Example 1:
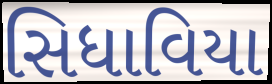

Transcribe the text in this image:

સિધાવિયા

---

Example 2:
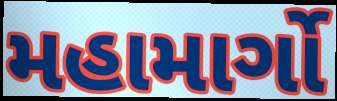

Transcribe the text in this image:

મહામાર્ગો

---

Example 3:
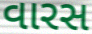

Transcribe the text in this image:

વારસ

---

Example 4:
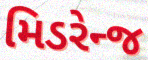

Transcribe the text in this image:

મિડરેન્જ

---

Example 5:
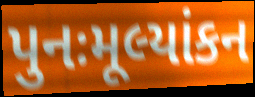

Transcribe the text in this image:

પુનઃમૂલ્યાંકન